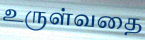
உருள்வதை